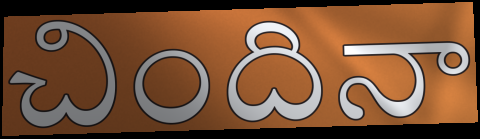
చిందినా